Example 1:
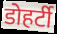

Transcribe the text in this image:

डोहर्टी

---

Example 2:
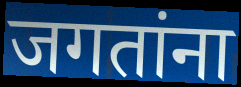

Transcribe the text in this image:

जगतांना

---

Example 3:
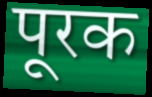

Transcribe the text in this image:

पूरक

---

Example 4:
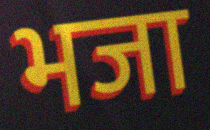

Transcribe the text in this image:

भजा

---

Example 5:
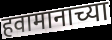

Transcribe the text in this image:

हवामानाच्या